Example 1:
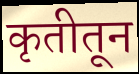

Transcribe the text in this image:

कृतीतून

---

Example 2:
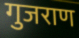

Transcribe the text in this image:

गुजराण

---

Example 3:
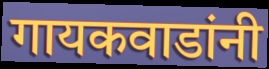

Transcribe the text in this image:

गायकवाडांनी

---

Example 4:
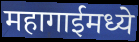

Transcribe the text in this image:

महागाईमध्ये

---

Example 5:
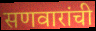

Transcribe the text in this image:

सणवारांची